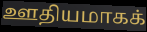
ஊதியமாகக்